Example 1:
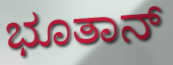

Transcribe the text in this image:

ಭೂತಾನ್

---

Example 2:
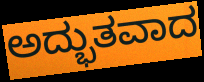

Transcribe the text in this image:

ಅದ್ಭುತವಾದ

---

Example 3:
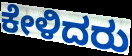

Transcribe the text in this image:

ಕೇಳಿದರು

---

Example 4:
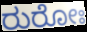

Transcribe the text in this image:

ರುರೋಃ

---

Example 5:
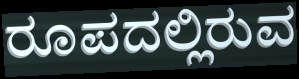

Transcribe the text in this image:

ರೂಪದಲ್ಲಿರುವ